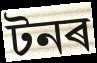
টনৰ